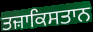
ਤਜ਼ਾਕਿਸਤਾਨ